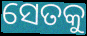
ସେତକୁ